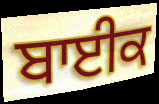
ਬਾਈਕ